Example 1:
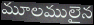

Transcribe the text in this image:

మూలములైన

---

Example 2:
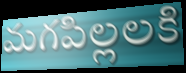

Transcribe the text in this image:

మగపిల్లలకి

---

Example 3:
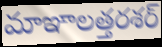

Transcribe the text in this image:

మాఞాలత్తరశర్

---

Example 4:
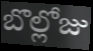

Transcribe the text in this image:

బొల్లోజు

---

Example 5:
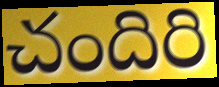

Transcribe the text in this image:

చందిరి